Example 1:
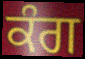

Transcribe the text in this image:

ਕੰਗ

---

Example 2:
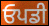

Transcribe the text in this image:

ਓਪਡੀ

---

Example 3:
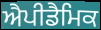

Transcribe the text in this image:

ਐਪੀਡੈਮਿਕ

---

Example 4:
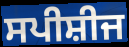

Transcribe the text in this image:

ਸਪੀਸ਼ੀਜ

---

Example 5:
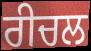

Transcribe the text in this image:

ਰੀਚਲ